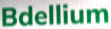
Bdellium